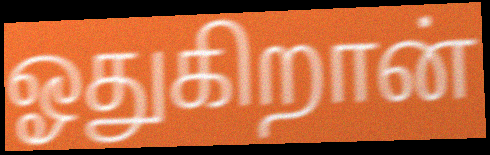
ஓதுகிறான்